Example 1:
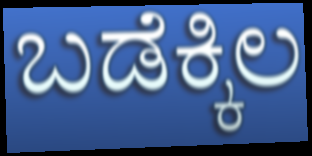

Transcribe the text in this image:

ಬಡೆಕ್ಕಿಲ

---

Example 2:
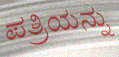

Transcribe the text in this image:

ಪತ್ರಿಯನ್ನು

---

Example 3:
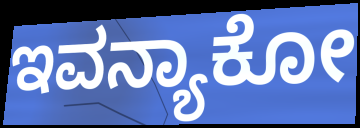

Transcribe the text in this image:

ಇವನ್ಯಾಕೋ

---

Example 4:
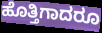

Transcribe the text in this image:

ಹೊತ್ತಿಗಾದರೂ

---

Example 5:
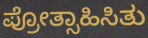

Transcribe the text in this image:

ಪ್ರೋತ್ಸಾಹಿಸಿತು